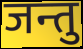
जन्तु